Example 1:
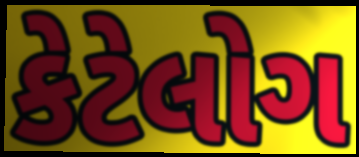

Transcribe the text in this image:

કેટેલોગ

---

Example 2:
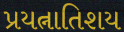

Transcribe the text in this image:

પ્રયત્નાતિશય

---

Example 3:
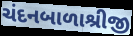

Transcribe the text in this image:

ચંદનબાળાશ્રીજી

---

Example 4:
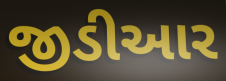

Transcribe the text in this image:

જીડીઆર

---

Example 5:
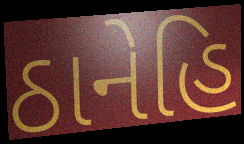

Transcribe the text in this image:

ઠાનેહિ